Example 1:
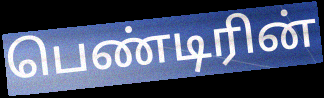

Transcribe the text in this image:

பெண்டிரின்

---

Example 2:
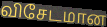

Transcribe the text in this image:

விசேடமான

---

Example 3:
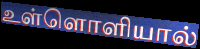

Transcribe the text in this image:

உள்ளொளியால்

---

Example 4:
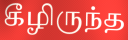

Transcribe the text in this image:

கீழிருந்த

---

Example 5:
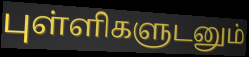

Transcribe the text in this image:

புள்ளிகளுடனும்